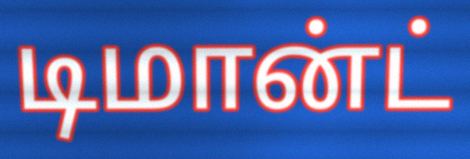
டிமான்ட்